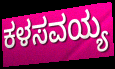
ಕಳಸವಯ್ಯ